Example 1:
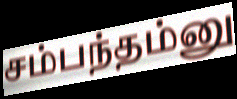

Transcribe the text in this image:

சம்பந்தம்னு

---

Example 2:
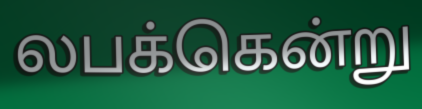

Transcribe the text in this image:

லபக்கென்று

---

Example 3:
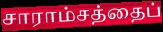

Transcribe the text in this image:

சாராம்சத்தைப்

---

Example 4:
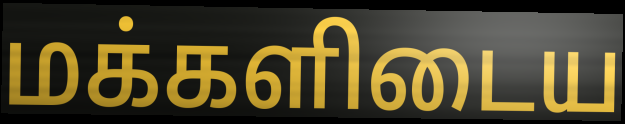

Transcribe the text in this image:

மக்களிடைய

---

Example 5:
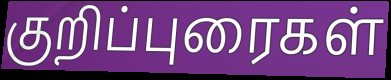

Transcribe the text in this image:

குறிப்புரைகள்